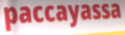
paccayassa